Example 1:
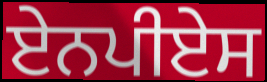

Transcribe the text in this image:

ਏਨਪੀਏਸ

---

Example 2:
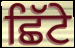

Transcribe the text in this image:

ਛਿੱਟੇ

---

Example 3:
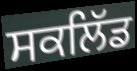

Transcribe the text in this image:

ਸਕਲਿੱਡ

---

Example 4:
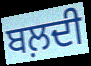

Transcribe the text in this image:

ਬਲ਼ਦੀ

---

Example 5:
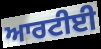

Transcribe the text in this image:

ਆਰਟੀਈ